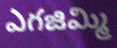
ఎగజిమ్మి